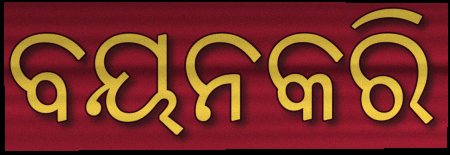
ବୟନକରି